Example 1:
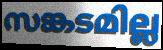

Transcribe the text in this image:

സങ്കടമില്ല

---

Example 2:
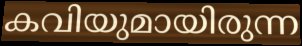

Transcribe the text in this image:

കവിയുമായിരുന്ന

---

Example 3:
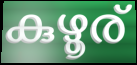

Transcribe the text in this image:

കുഴൂര്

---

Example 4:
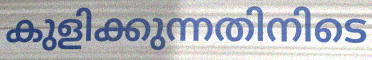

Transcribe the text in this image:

കുളിക്കുന്നതിനിടെ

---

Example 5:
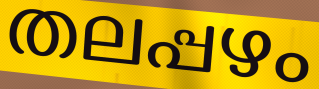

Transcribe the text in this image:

തലപ്പഴം